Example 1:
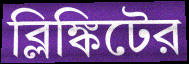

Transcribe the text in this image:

ব্লিঙ্কিটের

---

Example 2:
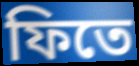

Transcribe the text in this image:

ফিতে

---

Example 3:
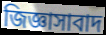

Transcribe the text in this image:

জিজ্ঞাসাবাদ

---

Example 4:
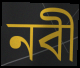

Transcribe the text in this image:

নবী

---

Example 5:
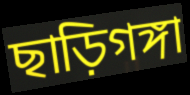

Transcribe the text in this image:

ছাড়িগঙ্গা